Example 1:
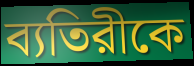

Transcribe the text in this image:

ব্যতিরীকে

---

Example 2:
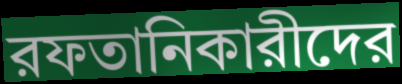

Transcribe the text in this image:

রফতানিকারীদের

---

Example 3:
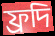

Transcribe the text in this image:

ফ্রদি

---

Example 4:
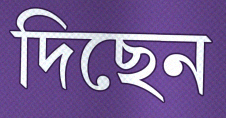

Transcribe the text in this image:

দিছেন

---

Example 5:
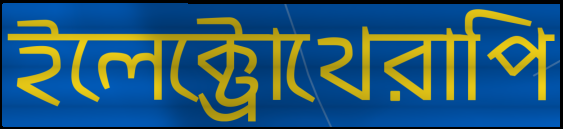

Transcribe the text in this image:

ইলেক্ট্রোথেরাপি